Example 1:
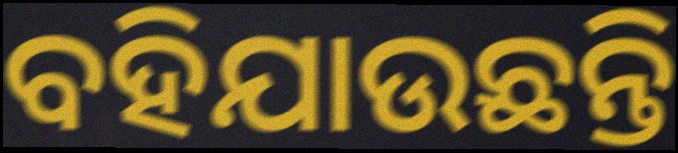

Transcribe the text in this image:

ବହିଯାଉଛନ୍ତି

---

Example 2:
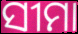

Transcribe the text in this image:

ସୀମା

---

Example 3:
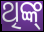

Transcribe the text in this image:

ଥିଙ୍କ୍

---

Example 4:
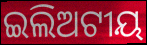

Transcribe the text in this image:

ଇଲିଅଟୀୟ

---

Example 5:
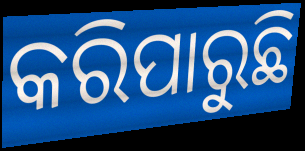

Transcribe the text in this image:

କରିପାରୁଛି